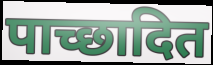
पाच्छादित